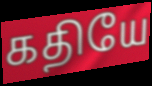
கதியே